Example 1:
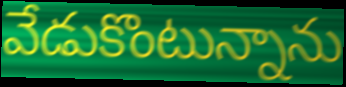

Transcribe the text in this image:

వేడుకొంటున్నాను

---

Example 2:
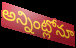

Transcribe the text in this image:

అన్నింట్లోనూ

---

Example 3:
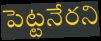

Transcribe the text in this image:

పెట్టనేరని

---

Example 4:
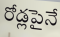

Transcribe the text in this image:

రోడ్లపైనే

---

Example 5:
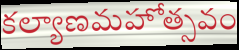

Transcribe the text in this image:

కల్యాణమహోత్సవం